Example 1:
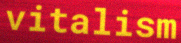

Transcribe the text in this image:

vitalism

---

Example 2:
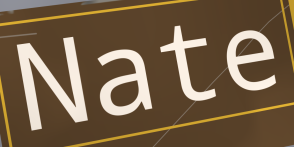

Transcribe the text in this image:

Nate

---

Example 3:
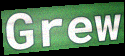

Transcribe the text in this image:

Grew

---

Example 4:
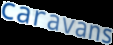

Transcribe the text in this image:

caravans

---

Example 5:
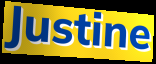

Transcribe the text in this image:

Justine